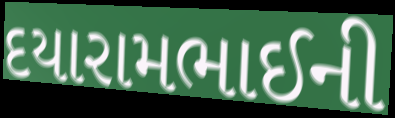
દયારામભાઈની